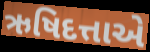
ઋષિદત્તાએ